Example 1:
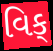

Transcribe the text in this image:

વિક્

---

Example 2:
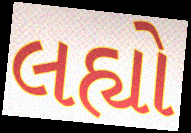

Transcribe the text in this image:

લહ્યો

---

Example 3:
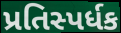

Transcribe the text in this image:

પ્રતિસ્પર્ધક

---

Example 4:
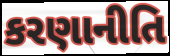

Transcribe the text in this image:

કરણાનીતિ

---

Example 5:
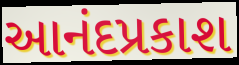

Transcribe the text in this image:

આનંદપ્રકાશ